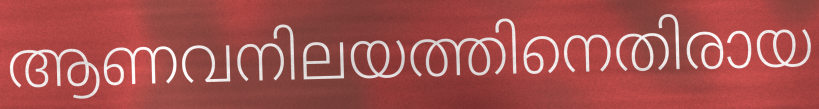
ആണവനിലയത്തിനെതിരായ